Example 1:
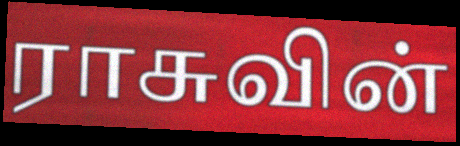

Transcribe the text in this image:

ராசுவின்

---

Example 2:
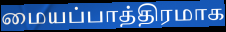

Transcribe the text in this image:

மையப்பாத்திரமாக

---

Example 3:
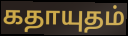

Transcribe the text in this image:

கதாயுதம்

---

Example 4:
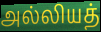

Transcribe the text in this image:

அல்லியத்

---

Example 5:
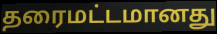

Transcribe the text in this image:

தரைமட்டமானது